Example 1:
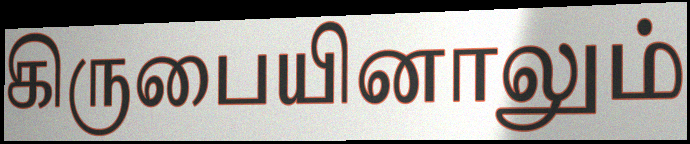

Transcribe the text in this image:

கிருபையினாலும்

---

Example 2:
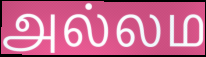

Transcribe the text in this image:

அல்லம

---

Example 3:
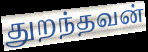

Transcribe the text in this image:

துறந்தவன்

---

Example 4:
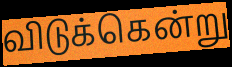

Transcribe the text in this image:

விடுக்கென்று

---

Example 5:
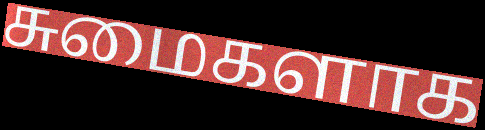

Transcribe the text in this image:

சுமைகளாக